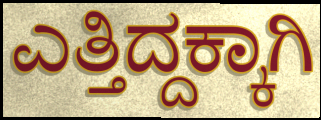
ಎತ್ತಿದ್ದಕ್ಕಾಗಿ